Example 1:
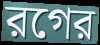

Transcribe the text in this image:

রগের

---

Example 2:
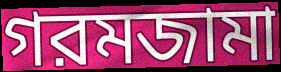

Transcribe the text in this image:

গরমজামা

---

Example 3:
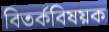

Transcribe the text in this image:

বিতর্কবিষয়ক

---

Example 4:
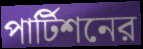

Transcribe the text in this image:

পার্টিশনের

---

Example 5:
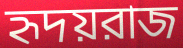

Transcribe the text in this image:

হৃদয়রাজ